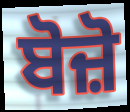
ਬੋਜ਼ੋ